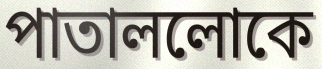
পাতাললোকে